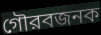
গৌরবজনক